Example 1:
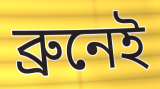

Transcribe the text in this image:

ব্ৰুনেই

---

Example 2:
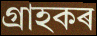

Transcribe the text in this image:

গ্ৰাহকৰ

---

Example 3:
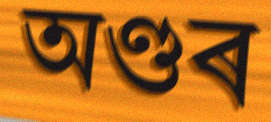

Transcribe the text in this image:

অণ্ডৰ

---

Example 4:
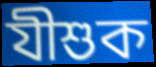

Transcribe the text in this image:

যীশুক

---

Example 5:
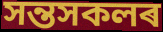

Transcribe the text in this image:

সন্তসকলৰ